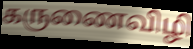
கருணைவிழி